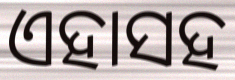
ଏହାସହ